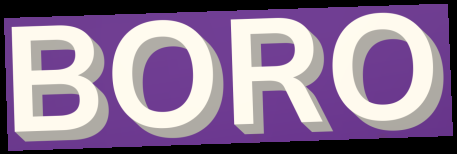
BORO